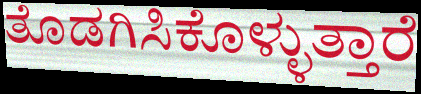
ತೊಡಗಿಸಿಕೊಳ್ಳುತ್ತಾರೆ